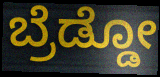
ಬ್ರೆಡ್ಡೋ